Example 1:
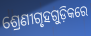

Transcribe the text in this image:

ଶ୍ରେଣୀଗୃହଗୁଡ଼ିକରେ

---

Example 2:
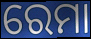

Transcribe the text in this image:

ରେମା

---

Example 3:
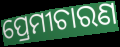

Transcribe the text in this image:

ପ୍ରେମୀଚାରଣ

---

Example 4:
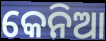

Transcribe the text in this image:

କେନିଆ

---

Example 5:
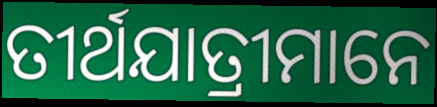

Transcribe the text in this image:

ତୀର୍ଥଯାତ୍ରୀମାନେ